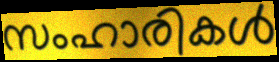
സംഹാരികൾ